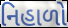
નિહાળો